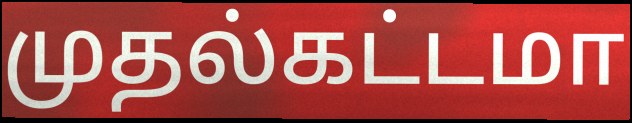
முதல்கட்டமா